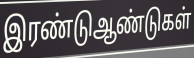
இரண்டுஆண்டுகள்